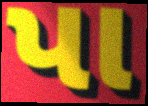
પા